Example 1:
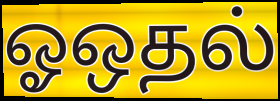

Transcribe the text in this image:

ஓஒதல்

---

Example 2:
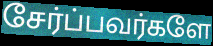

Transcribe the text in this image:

சேர்ப்பவர்களே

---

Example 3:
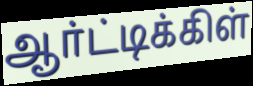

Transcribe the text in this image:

ஆர்ட்டிக்கிள்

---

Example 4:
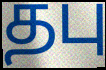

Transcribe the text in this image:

தபு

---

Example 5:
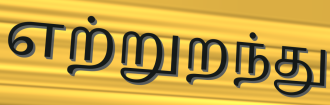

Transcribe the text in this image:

எற்றுறந்து